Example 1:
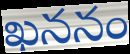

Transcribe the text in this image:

ఖననం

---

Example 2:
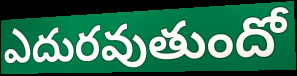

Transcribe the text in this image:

ఎదురవుతుందో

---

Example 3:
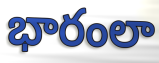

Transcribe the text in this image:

భారంలా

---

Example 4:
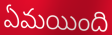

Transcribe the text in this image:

ఏమయింది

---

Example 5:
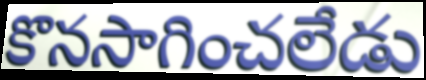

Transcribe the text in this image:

కొనసాగించలేడు